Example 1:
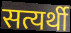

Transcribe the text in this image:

सत्यर्थी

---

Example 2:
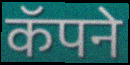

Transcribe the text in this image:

कॅपने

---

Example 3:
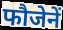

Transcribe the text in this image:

फौजेनें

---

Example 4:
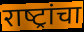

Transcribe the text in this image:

राष्ट्रांचा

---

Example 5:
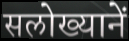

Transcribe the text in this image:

सलोख्यानें